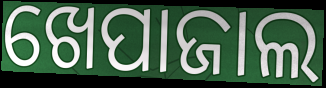
ଖେପାଜାଲ